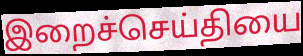
இறைச்செய்தியை